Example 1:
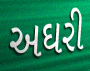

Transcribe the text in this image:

અઘરી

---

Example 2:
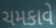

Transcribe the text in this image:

ચમકાવે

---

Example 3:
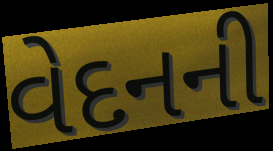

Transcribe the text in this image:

વેદનની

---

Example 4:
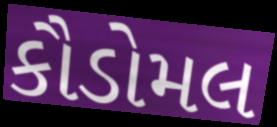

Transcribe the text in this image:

કૌડોમલ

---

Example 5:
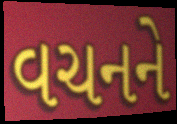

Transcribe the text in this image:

વચનને